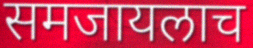
समजायलाच